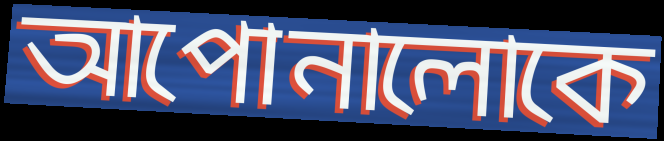
আপোনালোকে